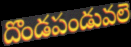
దొండపండువలె